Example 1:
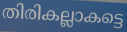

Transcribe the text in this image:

തിരികല്ലാകട്ടെ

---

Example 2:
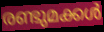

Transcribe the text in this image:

രണ്ടുമക്കൾ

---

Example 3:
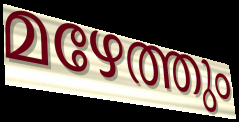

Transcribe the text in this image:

മഴേത്തും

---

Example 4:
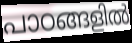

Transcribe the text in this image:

പാഠങ്ങളിൽ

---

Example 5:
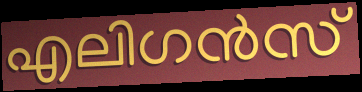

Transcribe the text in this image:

എലിഗൻസ്